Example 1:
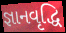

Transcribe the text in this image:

જ્ઞાનવૃદ્ધિ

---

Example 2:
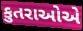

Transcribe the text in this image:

કુતરાઓએ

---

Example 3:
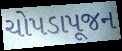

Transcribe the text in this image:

ચોપડાપૂજન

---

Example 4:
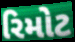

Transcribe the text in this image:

રિમોટ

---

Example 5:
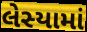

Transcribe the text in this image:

લેસ્યામાં